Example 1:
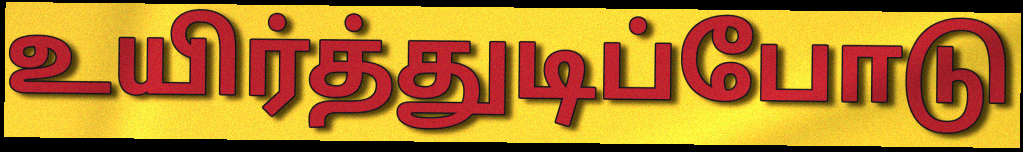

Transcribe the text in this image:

உயிர்த்துடிப்போடு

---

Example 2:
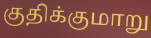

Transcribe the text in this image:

குதிக்குமாறு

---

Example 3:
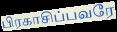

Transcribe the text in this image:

பிரகாசிப்பவரே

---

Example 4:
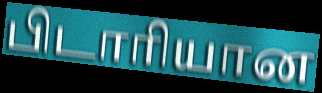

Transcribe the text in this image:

பிடாரியான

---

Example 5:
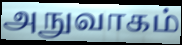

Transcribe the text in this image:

அநுவாகம்